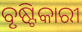
ବୃଷ୍ଟିକାରୀ